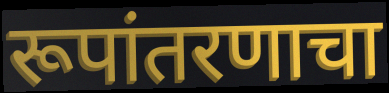
रूपांतरणाचा